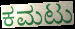
ಕಮಟು